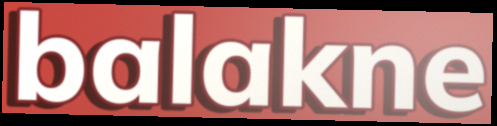
balakne